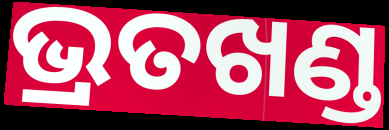
ଭ୍ରତଖଣ୍ଡ